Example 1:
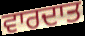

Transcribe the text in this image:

ਵਾਰਦਾਤ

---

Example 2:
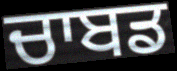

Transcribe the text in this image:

ਚਾਬਡ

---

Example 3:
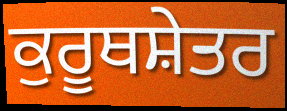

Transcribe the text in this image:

ਕੁਰੂਥਸ਼ੇਤਰ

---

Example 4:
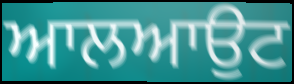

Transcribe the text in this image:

ਆਲਆਉਟ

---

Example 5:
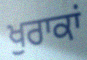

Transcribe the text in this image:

ਖੁਰਾਕਾਂ